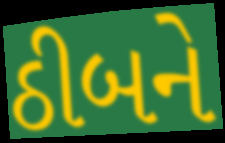
ઠીબને